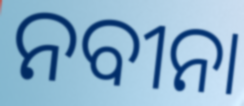
ନବୀନା